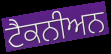
ਟੈਕਨੀਅਨ